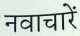
नवाचारें